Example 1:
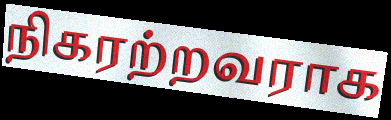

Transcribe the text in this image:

நிகரற்றவராக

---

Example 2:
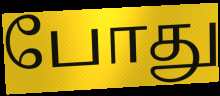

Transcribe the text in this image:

போது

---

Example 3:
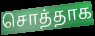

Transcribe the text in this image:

சொத்தாக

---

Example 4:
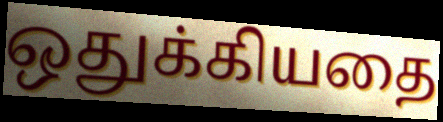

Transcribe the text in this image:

ஒதுக்கியதை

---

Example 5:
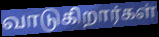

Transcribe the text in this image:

வாடுகிறார்கள்